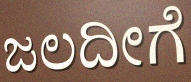
ಜಲದೀಗೆ